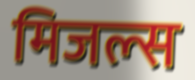
मिजल्स